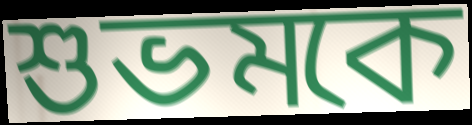
শুভমকে